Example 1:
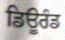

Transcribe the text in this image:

ਡਿਊਰੰਡ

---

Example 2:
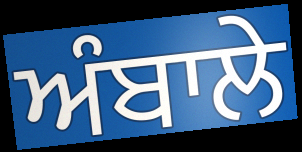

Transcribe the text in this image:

ਅੰਬਾਲੇ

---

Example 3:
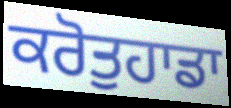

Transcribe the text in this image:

ਕਰੋਤੁਹਾਡਾ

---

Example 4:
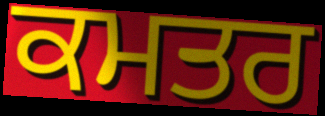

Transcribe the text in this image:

ਕਮਤਰ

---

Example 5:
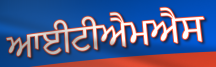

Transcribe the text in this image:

ਆਈਟੀਐਮਐਸ